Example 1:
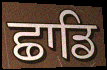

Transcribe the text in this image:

ਛਾਡਿ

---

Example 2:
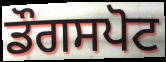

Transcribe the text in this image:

ਡੌਗਸਪੋਟ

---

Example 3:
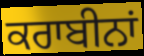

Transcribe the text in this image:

ਕਰਾਬੀਨਾਂ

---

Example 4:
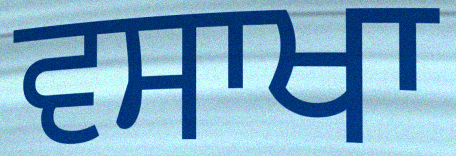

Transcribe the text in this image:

ਵਸਾਖਾ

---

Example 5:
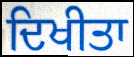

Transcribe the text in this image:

ਦਿਖੀਤਾ